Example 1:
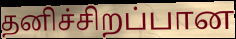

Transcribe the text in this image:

தனிச்சிறப்பான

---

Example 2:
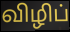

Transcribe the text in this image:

விழிப்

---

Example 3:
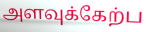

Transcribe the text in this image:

அளவுக்கேற்ப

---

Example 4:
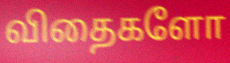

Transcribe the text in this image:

விதைகளோ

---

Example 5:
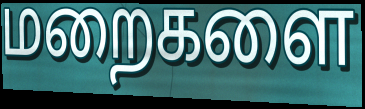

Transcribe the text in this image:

மறைகளை